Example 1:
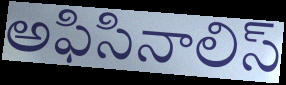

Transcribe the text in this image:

అఫిసినాలిస్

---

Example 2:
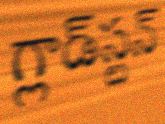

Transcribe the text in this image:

గ్లాడ్‌స్టన్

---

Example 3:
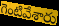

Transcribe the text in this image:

గెంటివేశారు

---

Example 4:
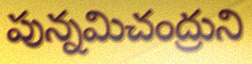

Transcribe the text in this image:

పున్నమిచంద్రుని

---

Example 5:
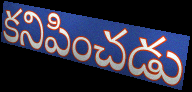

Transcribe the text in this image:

కనిపించడు